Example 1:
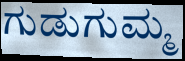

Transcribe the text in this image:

ಗುಡುಗುಮ್ಮ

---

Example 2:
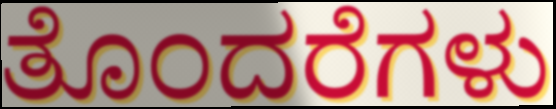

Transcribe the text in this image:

ತೊಂದರೆಗಳು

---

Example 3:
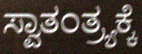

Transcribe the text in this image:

ಸ್ವಾತಂತ್ರ್ಯಕ್ಕೆ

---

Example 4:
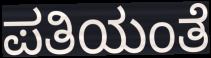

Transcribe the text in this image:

ಪತಿಯಂತೆ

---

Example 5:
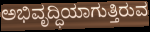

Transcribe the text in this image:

ಅಭಿವೃದ್ಧಿಯಾಗುತ್ತಿರುವ